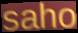
saho